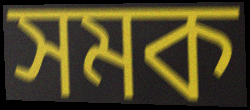
সমক